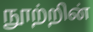
நூற்றின்